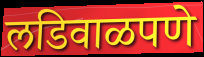
लडिवाळपणे